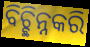
ବିଚ୍ଛିନ୍ନକରି